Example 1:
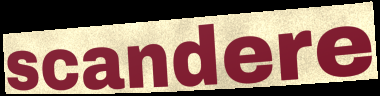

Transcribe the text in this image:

scandere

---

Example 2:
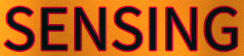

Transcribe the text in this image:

SENSING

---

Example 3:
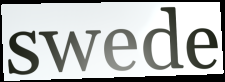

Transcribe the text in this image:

swede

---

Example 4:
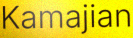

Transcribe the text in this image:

Kamajian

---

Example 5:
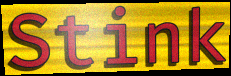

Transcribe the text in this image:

Stink